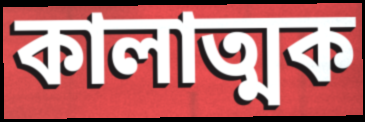
কালাত্মক